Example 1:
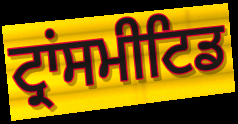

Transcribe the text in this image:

ਟ੍ਰਾਂਸਮੀਟਿਡ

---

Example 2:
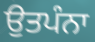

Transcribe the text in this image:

ਉਤਪੰਨਾ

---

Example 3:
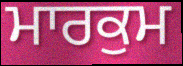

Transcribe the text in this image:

ਮਾਰਕੁਮ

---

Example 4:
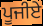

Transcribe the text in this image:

ਪੂਜੀਏ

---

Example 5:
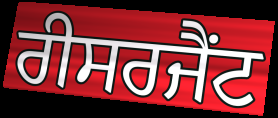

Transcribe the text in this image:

ਰੀਸਰਜੈਂਟ